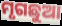
ମୃଗଛୁଆ